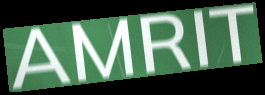
AMRIT